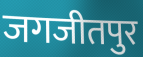
जगजीतपुर